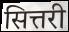
सित्तरी